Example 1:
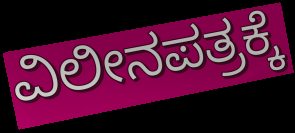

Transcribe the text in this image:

ವಿಲೀನಪತ್ರಕ್ಕೆ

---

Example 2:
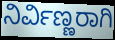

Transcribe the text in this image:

ನಿರ್ವಿಣ್ಣರಾಗಿ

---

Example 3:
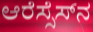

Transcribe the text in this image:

ಆರೆಸ್ಸೆಸ್‌ನ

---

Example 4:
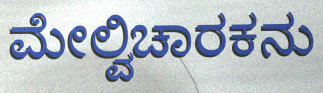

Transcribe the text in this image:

ಮೇಲ್ವಿಚಾರಕನು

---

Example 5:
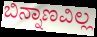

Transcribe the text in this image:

ಬಿನ್ನಾಣವಿಲ್ಲ